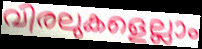
വിരലുകളെല്ലാം